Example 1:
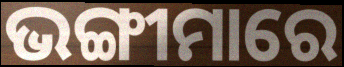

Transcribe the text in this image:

ଭଙ୍ଗୀମାରେ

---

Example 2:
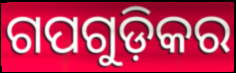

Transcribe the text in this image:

ଗପଗୁଡ଼ିକର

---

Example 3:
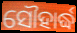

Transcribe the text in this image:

ସୌହାର୍ଦ୍ଧ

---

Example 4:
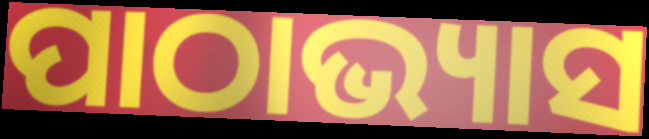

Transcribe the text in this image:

ପାଠାଭ୍ୟାସ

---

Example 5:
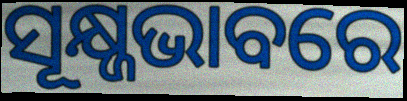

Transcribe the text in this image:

ସୂକ୍ଷ୍ଜଭାବରେ